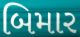
બિમાર